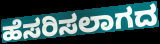
ಹೆಸರಿಸಲಾಗದ